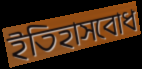
ইতিহাসবোধ